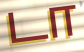
டா